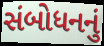
સંબોધનનું